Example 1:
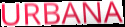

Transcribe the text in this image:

URBANA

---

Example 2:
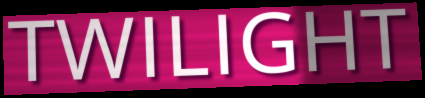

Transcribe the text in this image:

TWILIGHT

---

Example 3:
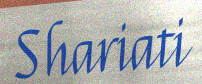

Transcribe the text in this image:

Shariati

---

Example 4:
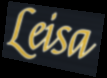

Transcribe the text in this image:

Leisa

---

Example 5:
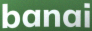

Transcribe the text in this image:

banai